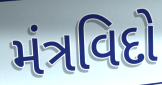
મંત્રવિદો